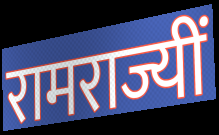
रामराज्यीं